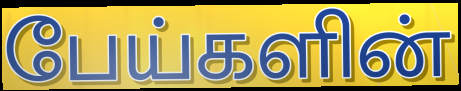
பேய்களின்